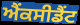
ਐਂਕਸੀਡੈਂਟ